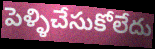
పెళ్ళిచేసుకోలేదు